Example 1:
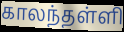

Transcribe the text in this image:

காலந்தள்ளி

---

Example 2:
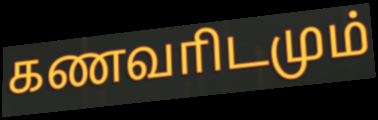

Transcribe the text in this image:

கணவரிடமும்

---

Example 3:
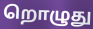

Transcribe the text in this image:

றொழுது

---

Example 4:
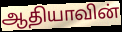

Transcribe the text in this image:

ஆதியாவின்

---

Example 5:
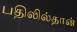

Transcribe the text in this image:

பதிலில்தான்